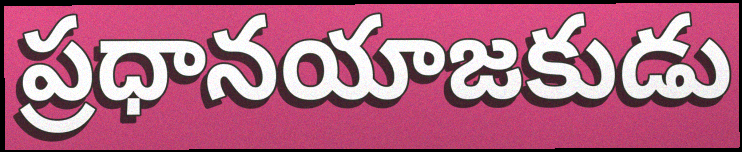
ప్రధానయాజకుడు